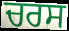
ਚਰਸ